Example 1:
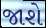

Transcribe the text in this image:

જાશે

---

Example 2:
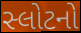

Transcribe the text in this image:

સ્લોટનો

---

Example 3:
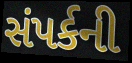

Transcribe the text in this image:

સંપર્કની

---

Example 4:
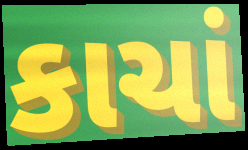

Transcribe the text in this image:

કાચાં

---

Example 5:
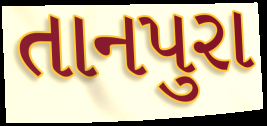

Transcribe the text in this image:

તાનપુરા